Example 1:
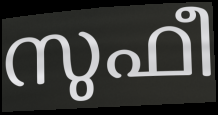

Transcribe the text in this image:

സുഫീ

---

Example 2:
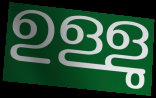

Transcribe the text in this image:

ഉള്ളു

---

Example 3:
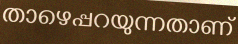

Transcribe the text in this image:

താഴെപ്പറയുന്നതാണ്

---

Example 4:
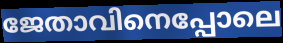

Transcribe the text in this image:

ജേതാവിനെപ്പോലെ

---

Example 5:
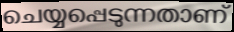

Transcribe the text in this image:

ചെയ്യപ്പെടുന്നതാണ്